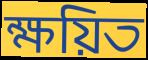
ক্ষয়িত